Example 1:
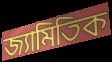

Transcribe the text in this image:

জ্যামিতিক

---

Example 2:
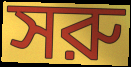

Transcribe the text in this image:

সরু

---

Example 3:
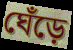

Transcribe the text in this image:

ঘেঁড়ে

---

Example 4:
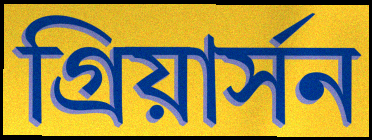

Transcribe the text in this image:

গ্রিয়ার্সন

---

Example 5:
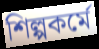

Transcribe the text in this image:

শিল্পকর্মে